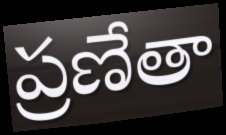
ప్రణేతా